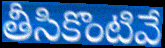
తీసికొంటివే